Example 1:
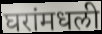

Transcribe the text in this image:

घरांमधली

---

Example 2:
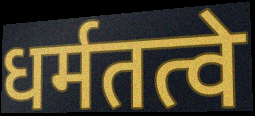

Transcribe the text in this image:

धर्मतत्वे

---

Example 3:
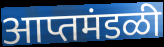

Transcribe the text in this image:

आप्तमंडळी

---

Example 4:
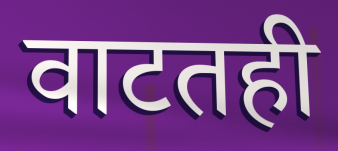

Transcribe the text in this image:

वाटतही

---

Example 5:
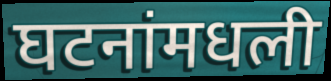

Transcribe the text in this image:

घटनांमधली